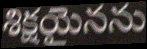
శిక్షయైనను